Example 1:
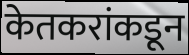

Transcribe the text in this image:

केतकरांकडून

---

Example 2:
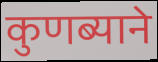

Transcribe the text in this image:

कुणब्याने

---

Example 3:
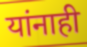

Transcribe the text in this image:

यांनाही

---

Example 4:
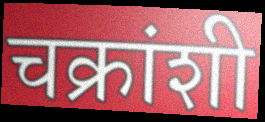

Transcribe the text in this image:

चक्रांशी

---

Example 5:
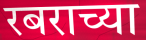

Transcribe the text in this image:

रबराच्या